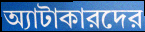
অ্যাটাকারদের